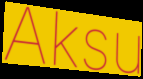
Aksu